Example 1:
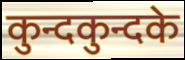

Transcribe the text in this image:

कुन्दकुन्दके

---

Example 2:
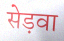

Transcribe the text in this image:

सेड़वा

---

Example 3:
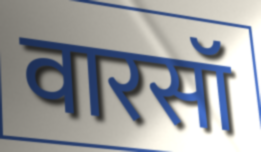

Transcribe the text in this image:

वारसॉ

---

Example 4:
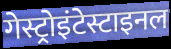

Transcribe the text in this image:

गेस्ट्रोइंटेस्टाइनल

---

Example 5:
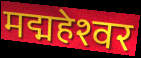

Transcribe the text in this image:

मद्महेश्वर